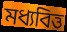
মধ্যবিত্ত